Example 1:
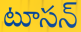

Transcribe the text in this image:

టూసన్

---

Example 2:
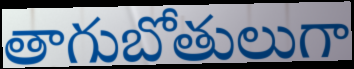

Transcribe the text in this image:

తాగుబోతులుగా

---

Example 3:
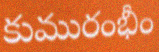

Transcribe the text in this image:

కుమురంభీం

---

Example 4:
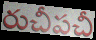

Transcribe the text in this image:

రుచీపచీ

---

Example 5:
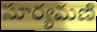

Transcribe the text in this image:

సూర్యమణి